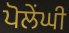
ਪੋਲੇਂਘੀ